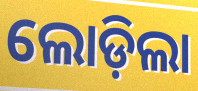
ଲୋଡ଼ିଲା